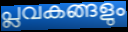
പ്ലവകങ്ങളും